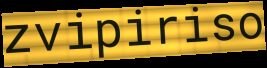
zvipiriso